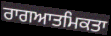
ਰਾਗਆਤਮਿਕਤਾ